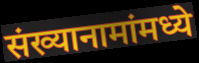
संख्यानामांमध्ये